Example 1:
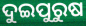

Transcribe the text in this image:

ଦୁଇପୁରୁଷ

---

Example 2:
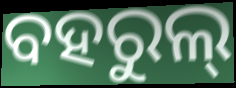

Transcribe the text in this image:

ବହରୁଲ୍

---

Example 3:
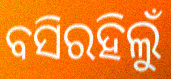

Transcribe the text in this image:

ବସିରହିଲୁଁ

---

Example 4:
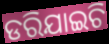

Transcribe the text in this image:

ଡରିଯାଇଚି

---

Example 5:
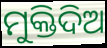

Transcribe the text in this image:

ମୁକ୍ତିଦିଅ